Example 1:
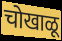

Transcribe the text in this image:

चोखाळू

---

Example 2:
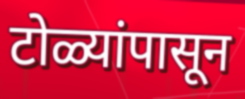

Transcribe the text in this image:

टोळ्यांपासून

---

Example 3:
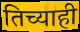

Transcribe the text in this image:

तिच्याही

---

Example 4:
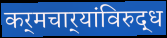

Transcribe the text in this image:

कर्मचार्यांविरुद्ध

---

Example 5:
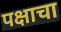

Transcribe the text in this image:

पक्षाचा